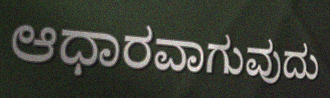
ಆಧಾರವಾಗುವುದು